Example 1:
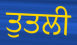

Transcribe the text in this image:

ਤੁਤਲੀ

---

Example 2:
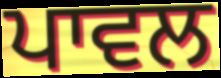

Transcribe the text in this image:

ਪਾਵਲ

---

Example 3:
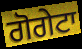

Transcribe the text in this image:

ਗੋਗੇਟਾ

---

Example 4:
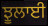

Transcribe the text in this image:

ਝੂਲਾਈ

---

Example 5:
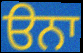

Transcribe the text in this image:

ੳਨਾ